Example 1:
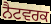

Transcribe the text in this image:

ਨੈਟਵਰਕ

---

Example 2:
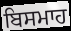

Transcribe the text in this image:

ਬਿਸਮਾਹ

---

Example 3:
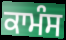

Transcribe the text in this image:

ਕਾਮੰਸ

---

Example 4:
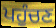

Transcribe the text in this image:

ਪਹੁੰਚਣ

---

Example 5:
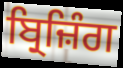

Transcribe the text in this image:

ਬ੍ਰਿਜ਼ਿੰਗ